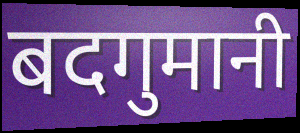
बदगुमानी